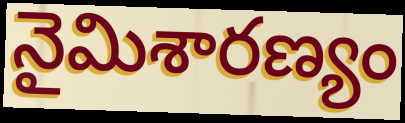
నైమిశారణ్యం